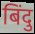
बिंदु